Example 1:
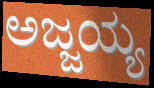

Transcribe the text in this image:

ಅಜ್ಜಯ್ಯ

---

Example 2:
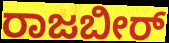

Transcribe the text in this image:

ರಾಜಬೀರ್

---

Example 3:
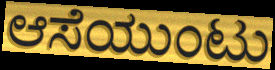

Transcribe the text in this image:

ಆಸೆಯುಂಟು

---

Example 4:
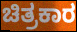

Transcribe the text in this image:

ಚಿತ್ರಕಾರ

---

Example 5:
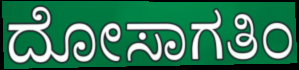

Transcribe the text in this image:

ದೋಸಾಗತಿಂ